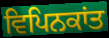
ਵਿਪਿਨਕਾਂਤ